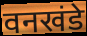
वनखंडे